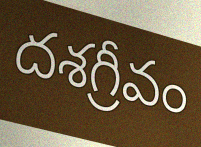
దశగ్రీవం